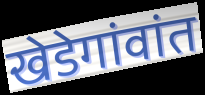
खेडेगांवांत